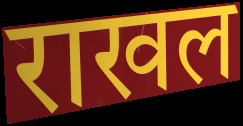
राखल